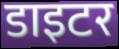
डाइटर